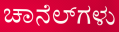
ಚಾನೆಲ್‌ಗಳು